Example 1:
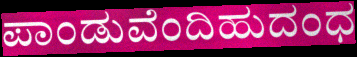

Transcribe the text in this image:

ಪಾಂಡುವೆಂದಿಹುದಂಧ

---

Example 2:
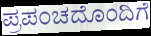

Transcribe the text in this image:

ಪ್ರಪಂಚದೊಂದಿಗೆ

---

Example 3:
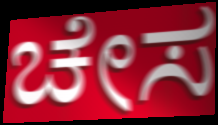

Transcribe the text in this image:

ಚೇಸ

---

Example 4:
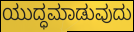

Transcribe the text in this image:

ಯುದ್ಧಮಾಡುವುದು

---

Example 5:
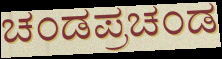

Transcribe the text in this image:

ಚಂಡಪ್ರಚಂಡ